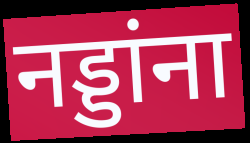
नड्डांना